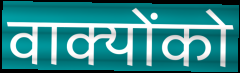
वाक्योंको